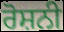
ਰੋਸ਼ਨੀ